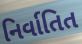
નિર્વાતિત